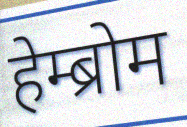
हेम्ब्रोम